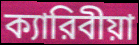
ক্যারিবীয়া